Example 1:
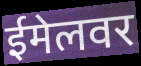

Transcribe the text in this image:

ईमेलवर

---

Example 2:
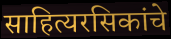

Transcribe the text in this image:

साहित्यरसिकांचे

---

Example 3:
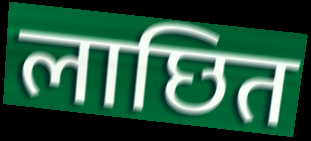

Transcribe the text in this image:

लाछित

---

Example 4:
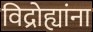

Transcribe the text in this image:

विद्रोह्यांना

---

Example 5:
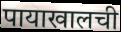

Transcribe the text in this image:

पायाखालची